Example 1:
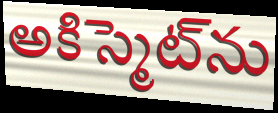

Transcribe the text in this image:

అకిస్మెట్‌ను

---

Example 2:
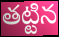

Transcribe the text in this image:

తట్టిన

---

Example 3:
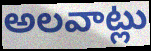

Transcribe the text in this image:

అలవాట్లు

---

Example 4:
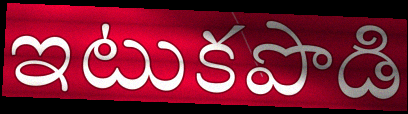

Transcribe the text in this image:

ఇటుకపొడి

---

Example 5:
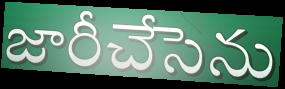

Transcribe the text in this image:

జారీచేసెను